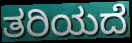
ತರಿಯದೆ